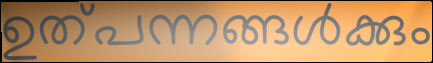
ഉത്പന്നങ്ങൾക്കും